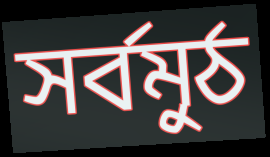
সৰ্বমুঠ